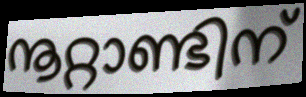
നൂറ്റാണ്ടിന്